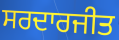
ਸਰਦਾਰਜੀਤ